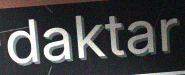
daktar